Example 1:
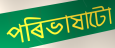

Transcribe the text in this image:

পৰিভাষাটো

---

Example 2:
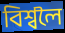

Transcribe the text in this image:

বিশ্বলৈ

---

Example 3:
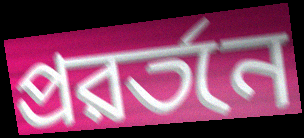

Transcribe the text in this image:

প্ৰৱৰ্তনে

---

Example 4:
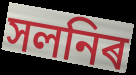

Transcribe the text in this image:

সলনিৰ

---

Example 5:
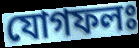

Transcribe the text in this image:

যোগফলঃ